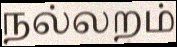
நல்லறம்